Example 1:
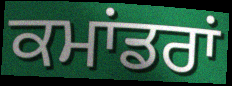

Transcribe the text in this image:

ਕਮਾਂਡਰਾਂ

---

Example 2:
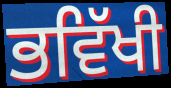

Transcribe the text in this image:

ਭਵਿੱਖੀ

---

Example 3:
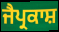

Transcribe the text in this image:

ਜੈਪ੍ਰਕਾਸ਼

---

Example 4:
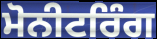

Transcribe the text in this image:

ਮੋਨੀਟਰਿੰਗ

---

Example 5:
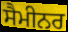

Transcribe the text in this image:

ਸੈਮੀਨਰ